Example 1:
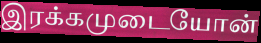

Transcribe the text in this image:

இரக்கமுடையோன்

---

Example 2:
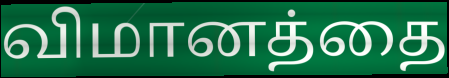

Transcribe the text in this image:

விமானத்தை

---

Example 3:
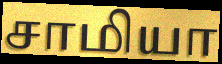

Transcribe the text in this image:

சாமியா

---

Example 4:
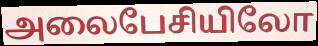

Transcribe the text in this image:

அலைபேசியிலோ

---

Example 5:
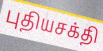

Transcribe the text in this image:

புதியசக்தி